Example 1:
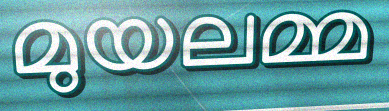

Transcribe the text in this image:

മുയലമ്മ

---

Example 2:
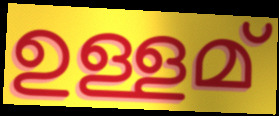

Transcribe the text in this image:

ഉള്ളമ്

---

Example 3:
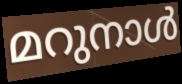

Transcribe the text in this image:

മറുനാൾ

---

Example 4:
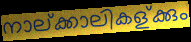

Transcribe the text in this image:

നാല്ക്കാലികള്ക്കും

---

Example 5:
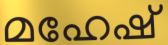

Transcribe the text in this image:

മഹേഷ്